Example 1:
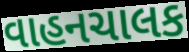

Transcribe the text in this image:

વાહનચાલક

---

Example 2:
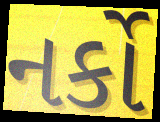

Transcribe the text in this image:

નર્કો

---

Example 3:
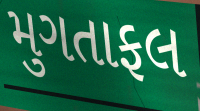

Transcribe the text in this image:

મુગતાફલ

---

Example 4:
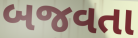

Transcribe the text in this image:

બજવતા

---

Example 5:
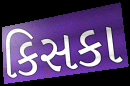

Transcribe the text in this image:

કિસકા